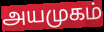
அயமுகம்